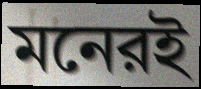
মনেরই